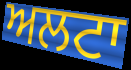
ਅਲਟਾ